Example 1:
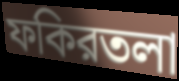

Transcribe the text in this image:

ফকিরতলা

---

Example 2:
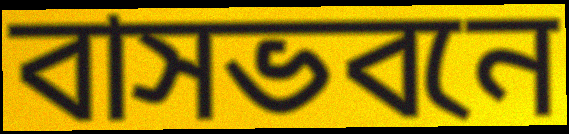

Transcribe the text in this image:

বাসভবনে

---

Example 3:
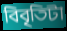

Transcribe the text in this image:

বিবৃতিটা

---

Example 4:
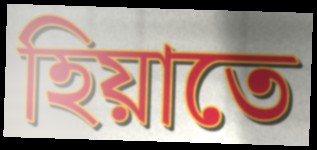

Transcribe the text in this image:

হিয়াতে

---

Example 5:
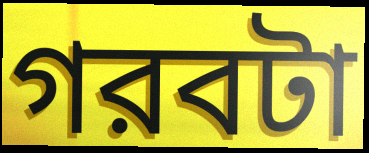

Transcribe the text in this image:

গরবটা